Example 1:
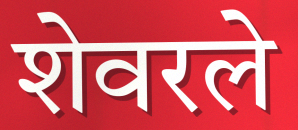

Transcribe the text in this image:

शेवरले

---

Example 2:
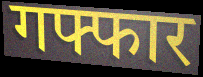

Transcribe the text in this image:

गफ्फार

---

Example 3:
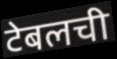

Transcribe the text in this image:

टेबलची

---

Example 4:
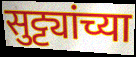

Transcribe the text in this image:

सुट्ट्यांच्या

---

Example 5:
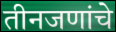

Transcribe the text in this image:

तीनजणांचे